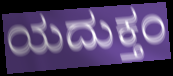
ಯದುಕ್ತಂ